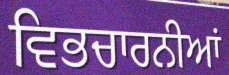
ਵਿਭਚਾਰਨੀਆਂ